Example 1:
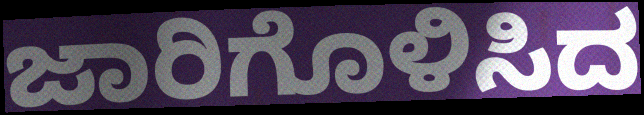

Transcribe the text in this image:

ಜಾರಿಗೊಳಿಸಿದ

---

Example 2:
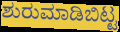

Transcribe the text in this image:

ಶುರುಮಾಡಿಬಿಟ್ಟ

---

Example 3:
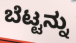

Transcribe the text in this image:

ಬೆಟ್ಟನ್ನು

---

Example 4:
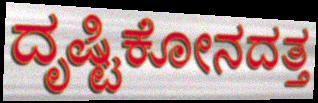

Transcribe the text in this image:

ದೃಷ್ಟಿಕೋನದತ್ತ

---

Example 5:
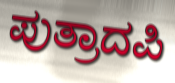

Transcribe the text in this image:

ಪುತ್ರಾದಪಿ